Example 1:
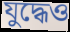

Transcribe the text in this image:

যুদ্ধেও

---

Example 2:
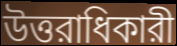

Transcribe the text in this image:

উত্তরাধিকারী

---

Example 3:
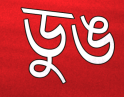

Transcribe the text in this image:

ডুঙ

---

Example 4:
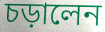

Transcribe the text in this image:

চড়ালেন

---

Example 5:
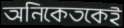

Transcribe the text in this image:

অনিকেতকেই